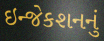
ઇન્જેકશનનું